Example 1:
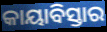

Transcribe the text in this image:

କାୟାବିସ୍ତାର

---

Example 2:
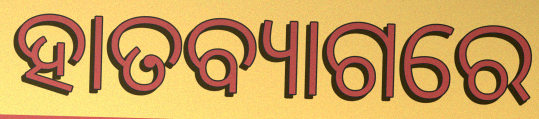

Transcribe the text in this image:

ହାତବ୍ୟାଗରେ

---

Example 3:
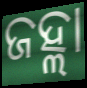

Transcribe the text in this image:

ଜହ୍ଲା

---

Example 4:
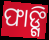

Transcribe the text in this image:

ଫାଙ୍ଗି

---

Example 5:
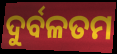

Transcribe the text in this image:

ଦୁର୍ବଳତମ